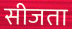
सीजता